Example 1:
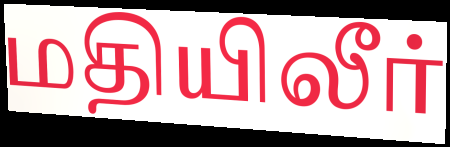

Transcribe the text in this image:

மதியிலீர்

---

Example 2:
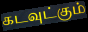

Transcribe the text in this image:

கடவுட்கும்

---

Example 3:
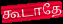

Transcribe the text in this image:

கூடாதே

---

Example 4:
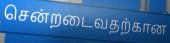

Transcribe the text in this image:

சென்றடைவதற்கான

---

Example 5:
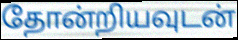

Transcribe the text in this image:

தோன்றியவுடன்